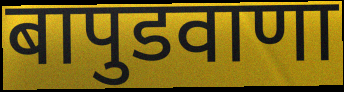
बापुडवाणा